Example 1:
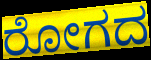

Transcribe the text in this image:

ರೋಗದ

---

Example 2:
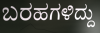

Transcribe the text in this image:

ಬರಹಗಳಿದ್ದು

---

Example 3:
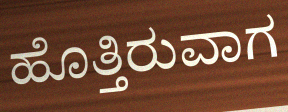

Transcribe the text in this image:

ಹೊತ್ತಿರುವಾಗ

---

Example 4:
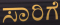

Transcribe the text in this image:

ಸಾರಿಗೆ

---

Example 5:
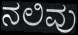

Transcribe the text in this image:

ನಲಿವು